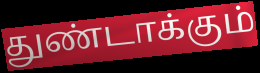
துண்டாக்கும்